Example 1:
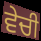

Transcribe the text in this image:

ਵੇਚੀ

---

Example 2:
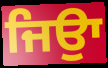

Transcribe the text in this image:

ਜਿਉਾ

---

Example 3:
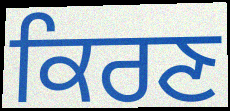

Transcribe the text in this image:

ਕਿਰਣ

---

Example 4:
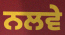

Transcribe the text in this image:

ਨਲਵੇ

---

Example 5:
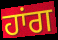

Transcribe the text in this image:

ਹਾਂਗ